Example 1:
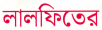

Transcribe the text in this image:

লালফিতের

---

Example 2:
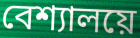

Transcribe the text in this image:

বেশ্যালয়ে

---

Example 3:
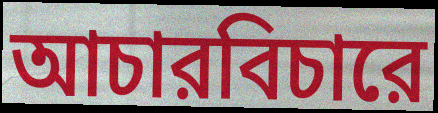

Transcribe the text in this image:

আচারবিচারে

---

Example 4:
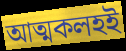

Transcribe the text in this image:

আত্মকলহই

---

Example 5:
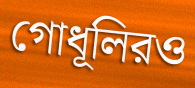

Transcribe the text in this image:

গোধূলিরও